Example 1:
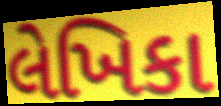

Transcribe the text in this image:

લેખિકા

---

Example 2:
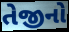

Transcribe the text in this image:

તેજીનો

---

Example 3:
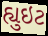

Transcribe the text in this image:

હ્યુઇટ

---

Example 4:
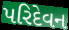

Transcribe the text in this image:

પરિદેવન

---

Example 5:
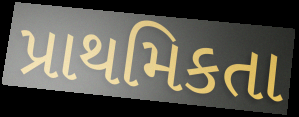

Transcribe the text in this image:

પ્રાથમિકતા